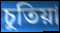
চুতিয়া